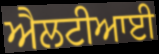
ਐਲਟੀਆਈ